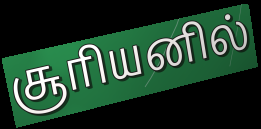
சூரியனில்